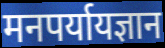
मनपर्यायज्ञान